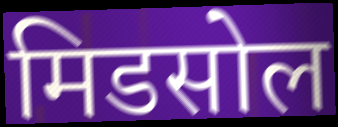
मिडसोल